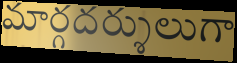
మార్గదర్శులుగా